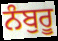
ਨੰਬੁਰੂ